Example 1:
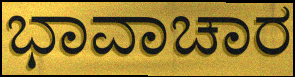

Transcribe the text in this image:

ಭಾವಾಚಾರ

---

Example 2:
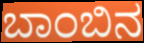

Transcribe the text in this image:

ಬಾಂಬಿನ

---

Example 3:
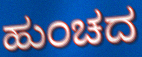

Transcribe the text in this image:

ಹುಂಚದ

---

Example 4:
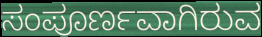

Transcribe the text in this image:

ಸಂಪೂರ್ಣವಾಗಿರುವ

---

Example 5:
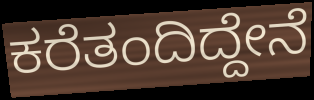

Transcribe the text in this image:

ಕರೆತಂದಿದ್ದೇನೆ